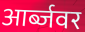
आर्ब्जवर